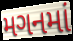
મગનમાં